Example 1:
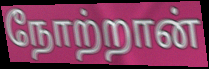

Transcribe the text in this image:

நோற்றான்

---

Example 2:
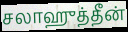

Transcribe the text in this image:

சலாஹுத்தீன்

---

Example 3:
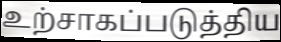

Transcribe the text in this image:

உற்சாகப்படுத்திய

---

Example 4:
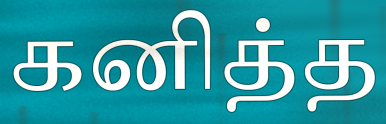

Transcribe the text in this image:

கனித்த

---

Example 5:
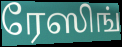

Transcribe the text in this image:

ரேஸிங்